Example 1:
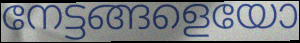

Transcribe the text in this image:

നേട്ടങ്ങളെയോ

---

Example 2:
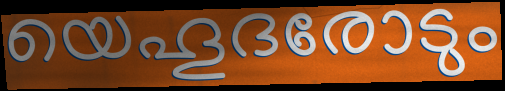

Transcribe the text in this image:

യെഹൂദരോടും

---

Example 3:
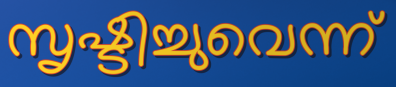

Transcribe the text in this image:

സൃഷ്ടിച്ചുവെന്ന്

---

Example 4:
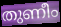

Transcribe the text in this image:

തുണീം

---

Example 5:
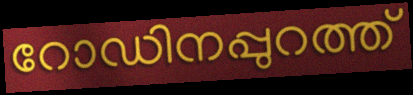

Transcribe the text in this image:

റോഡിനപ്പുറത്ത്